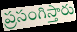
ప్రసంగిస్తారు